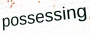
possessing